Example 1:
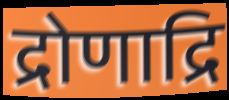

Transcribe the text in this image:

द्रोणाद्रि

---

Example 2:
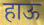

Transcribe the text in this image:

हाऊ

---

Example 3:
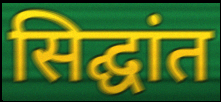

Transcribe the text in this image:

सिद्घांत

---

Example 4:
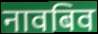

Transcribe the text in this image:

नावबिव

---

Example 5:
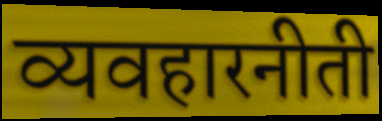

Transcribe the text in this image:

व्यवहारनीती